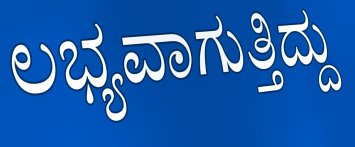
ಲಭ್ಯವಾಗುತ್ತಿದ್ದು